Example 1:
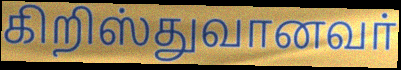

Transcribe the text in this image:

கிறிஸ்துவானவர்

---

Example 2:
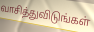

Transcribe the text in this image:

வாசித்துவிடுங்கள்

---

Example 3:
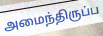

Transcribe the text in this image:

அமைந்திருப்ப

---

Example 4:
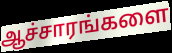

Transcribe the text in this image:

ஆச்சாரங்களை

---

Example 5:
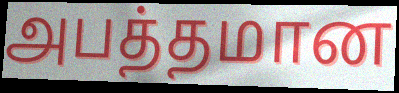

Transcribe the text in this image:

அபத்தமான